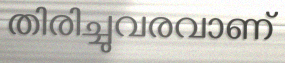
തിരിച്ചുവരവാണ്